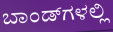
ಬಾಂಡ್‌ಗಳಲ್ಲಿ